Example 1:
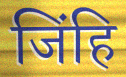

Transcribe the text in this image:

जिंहि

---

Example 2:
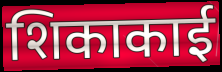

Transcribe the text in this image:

शिकाकाई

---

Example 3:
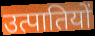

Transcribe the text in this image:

उत्पातियों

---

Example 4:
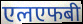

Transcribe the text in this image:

एलएफबी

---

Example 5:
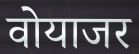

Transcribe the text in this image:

वोयाजर